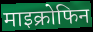
माइक्रोफिन